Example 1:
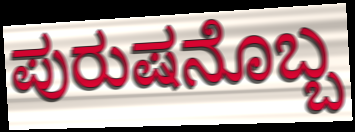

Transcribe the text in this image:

ಪುರುಷನೊಬ್ಬ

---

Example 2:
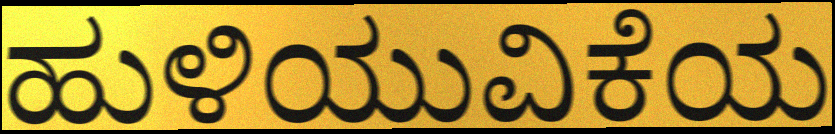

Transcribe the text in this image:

ಹುಳಿಯುವಿಕೆಯ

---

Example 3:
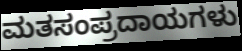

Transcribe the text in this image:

ಮತಸಂಪ್ರದಾಯಗಳು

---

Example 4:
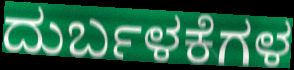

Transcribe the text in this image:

ದುರ್ಬಳಕೆಗಳ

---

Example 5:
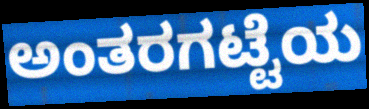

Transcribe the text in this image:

ಅಂತರಗಟ್ಟೆಯ